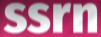
ssrn